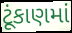
ટૂંકાણમાં